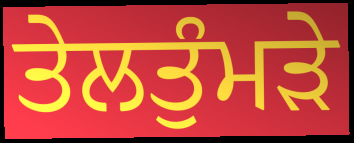
ਤੇਲਤੁੰਮੜੇ